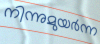
നിന്നുമുയർന്ന